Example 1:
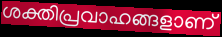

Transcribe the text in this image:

ശക്തിപ്രവാഹങ്ങളാണ്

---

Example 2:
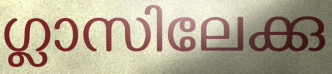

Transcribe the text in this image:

ഗ്ലാസിലേക്കു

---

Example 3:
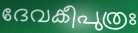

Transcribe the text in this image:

ദേവകീപുത്രഃ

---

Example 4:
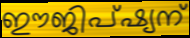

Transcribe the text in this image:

ഈജിപ്ഷ്യന്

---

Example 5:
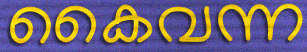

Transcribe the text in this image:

കൈവന്ന